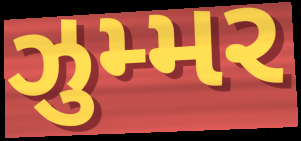
ઝુમ્મર